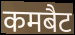
कमबैट